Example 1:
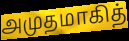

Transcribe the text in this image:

அமுதமாகித்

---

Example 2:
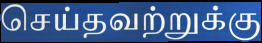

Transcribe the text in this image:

செய்தவற்றுக்கு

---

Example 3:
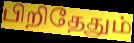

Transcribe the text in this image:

பிறிதேதும்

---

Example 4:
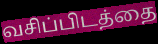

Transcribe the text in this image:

வசிப்பிடத்தை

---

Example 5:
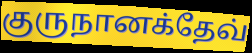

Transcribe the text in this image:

குருநானக்தேவ்